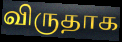
விருதாக